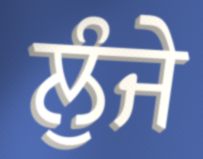
ਲੁੰਜੇ